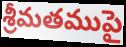
శ్రీమతముపై